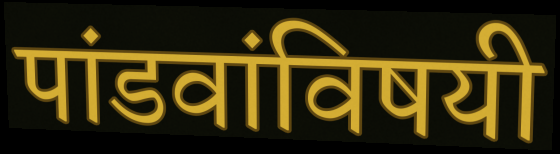
पांडवांविषयी